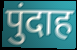
पुंदाह